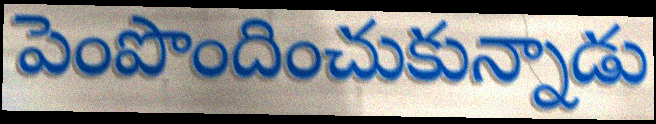
పెంపొందించుకున్నాడు